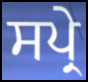
ਸਪ੍ਰੇ